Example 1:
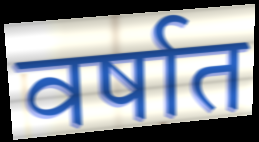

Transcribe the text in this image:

वर्षात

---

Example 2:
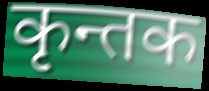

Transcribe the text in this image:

कृन्तक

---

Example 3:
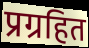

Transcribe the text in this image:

प्रग्रहित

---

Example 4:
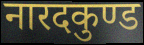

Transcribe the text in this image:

नारदकुण्ड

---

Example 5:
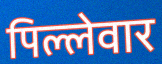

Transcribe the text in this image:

पिल्लेवार